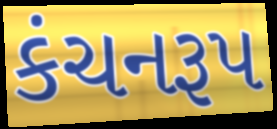
કંચનરૂપ